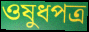
ওষুধপত্র